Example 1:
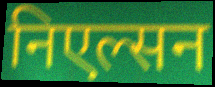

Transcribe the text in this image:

निएल्सन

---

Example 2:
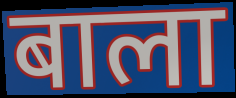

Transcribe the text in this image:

बाला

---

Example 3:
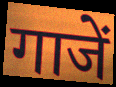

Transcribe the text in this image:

गाजें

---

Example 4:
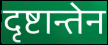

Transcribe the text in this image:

दृष्टान्तेन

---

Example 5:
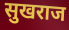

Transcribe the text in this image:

सुखराज